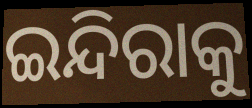
ଇନ୍ଦିରାକୁ